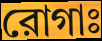
রোগাঃ